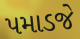
પમાડજે